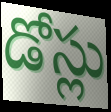
డోస్లు